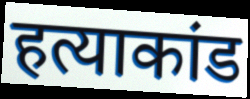
हत्याकांड